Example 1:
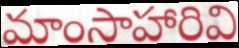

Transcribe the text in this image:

మాంసాహారివి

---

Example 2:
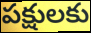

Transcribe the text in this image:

పక్షులకు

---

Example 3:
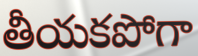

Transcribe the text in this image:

తీయకపోగా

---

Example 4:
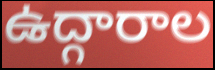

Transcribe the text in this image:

ఉద్గారాల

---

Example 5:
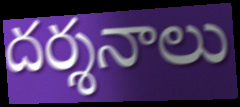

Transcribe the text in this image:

దర్శనాలు